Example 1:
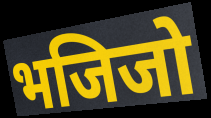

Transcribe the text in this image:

भजिजो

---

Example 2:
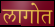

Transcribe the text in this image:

लागोत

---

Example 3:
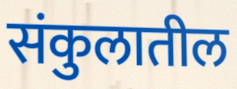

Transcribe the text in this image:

संकुलातील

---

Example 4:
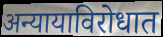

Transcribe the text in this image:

अन्यायाविरोधात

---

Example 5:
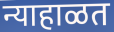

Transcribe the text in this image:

न्याहाळत